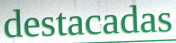
destacadas